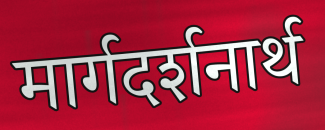
मार्गदर्शनार्थ